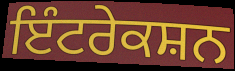
ਇੰਟਰੇਕਸ਼ਨ